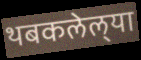
थबकलेल्या